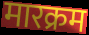
मारक्रम